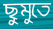
ছুমুতে